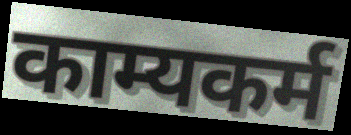
काम्यकर्म